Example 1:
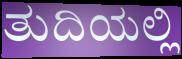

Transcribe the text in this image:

ತುದಿಯಲ್ಲಿ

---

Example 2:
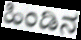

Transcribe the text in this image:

ಹಿಂಡಿನ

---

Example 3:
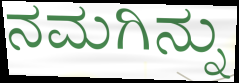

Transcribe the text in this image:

ನಮಗಿನ್ನು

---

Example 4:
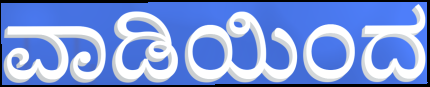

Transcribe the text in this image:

ವಾಡಿಯಿಂದ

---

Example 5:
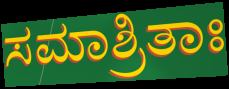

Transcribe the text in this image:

ಸಮಾಶ್ರಿತಾಃ